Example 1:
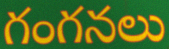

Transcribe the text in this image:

గంగనలు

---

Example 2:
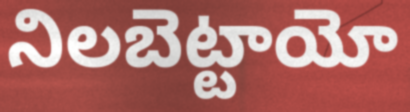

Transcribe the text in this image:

నిలబెట్టాయో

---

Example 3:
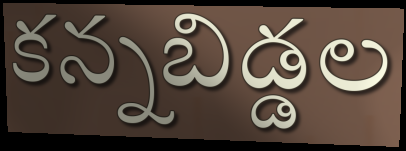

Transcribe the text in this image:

కన్నబిడ్డల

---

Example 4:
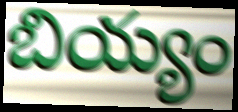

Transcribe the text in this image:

బియ్యం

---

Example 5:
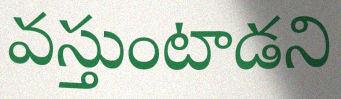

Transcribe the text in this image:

వస్తుంటాడని